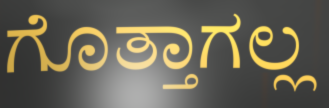
ಗೊತ್ತಾಗಲ್ಲ